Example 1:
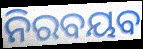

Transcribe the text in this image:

ନିରବୟବ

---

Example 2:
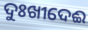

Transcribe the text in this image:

ଦୁଃଖୀଦେଈ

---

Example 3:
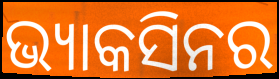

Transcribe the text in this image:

ଭ୍ୟାକସିନର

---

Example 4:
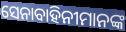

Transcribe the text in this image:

ସେନାବାହିନୀମାନଙ୍କ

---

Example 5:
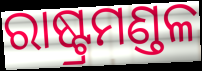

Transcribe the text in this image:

ରାଷ୍ଟ୍ରମଣ୍ଡଳ